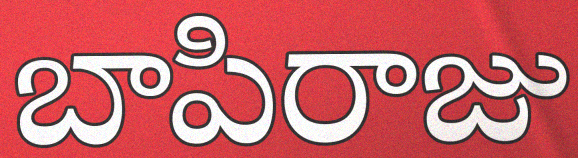
బాపిరాజు